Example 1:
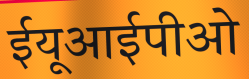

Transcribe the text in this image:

ईयूआईपीओ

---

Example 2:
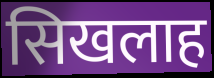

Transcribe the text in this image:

सिखलाह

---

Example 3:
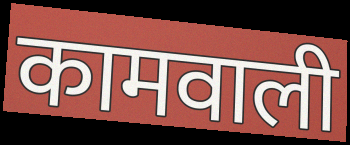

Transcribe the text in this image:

कामवाली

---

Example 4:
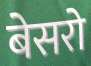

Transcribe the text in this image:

बेसरो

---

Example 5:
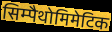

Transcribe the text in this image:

सिम्पैथोमिमेटिक